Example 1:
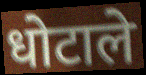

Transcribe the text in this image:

धोटाले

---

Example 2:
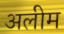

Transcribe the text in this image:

अलीम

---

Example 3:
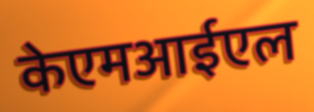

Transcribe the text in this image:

केएमआईएल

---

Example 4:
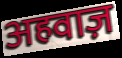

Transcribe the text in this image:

अहवाज़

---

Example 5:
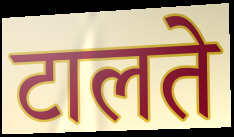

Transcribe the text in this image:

टालते